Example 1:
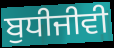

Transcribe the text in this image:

ਬੁਧੀਜੀਵੀ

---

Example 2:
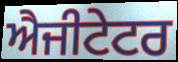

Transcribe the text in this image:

ਐਜੀਟੇਟਰ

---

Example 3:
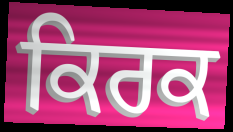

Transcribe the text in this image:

ਕਿਰਕ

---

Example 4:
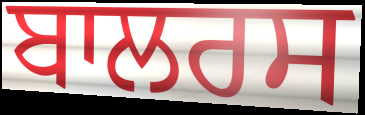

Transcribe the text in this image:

ਬਾਲਰਸ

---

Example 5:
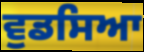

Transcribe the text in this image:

ਵੁਡਸਿਆ